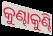
କୁଣ୍ଢାକୁଣ୍ଢି